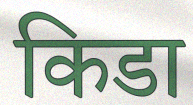
किडा